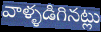
వాళ్ళడిగినట్లు